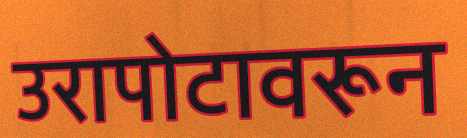
उरापोटावरून